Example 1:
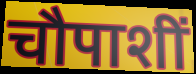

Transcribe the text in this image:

चौपाशीं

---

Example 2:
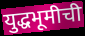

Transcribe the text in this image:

युद्धभूमीची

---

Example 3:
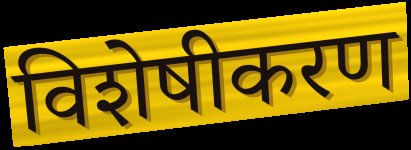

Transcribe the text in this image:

विशेषीकरण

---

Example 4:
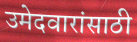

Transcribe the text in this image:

उमेदवारांसाठी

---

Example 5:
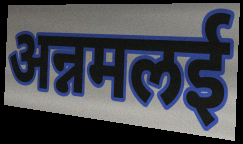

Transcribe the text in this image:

अन्नमलई